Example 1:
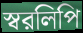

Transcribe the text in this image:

স্বরলিপি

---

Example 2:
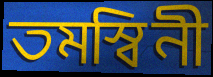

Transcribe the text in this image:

তমস্বিনী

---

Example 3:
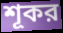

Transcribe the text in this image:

শূকর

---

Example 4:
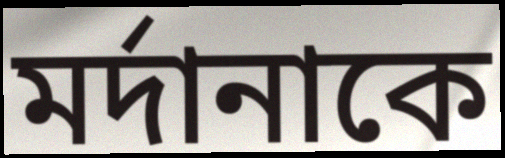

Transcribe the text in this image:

মর্দানাকে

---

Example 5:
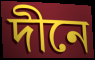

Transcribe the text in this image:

দীনে